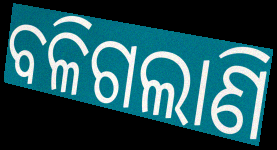
ବଳିଗଲାଣି